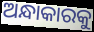
ଅନ୍ଧାକାରକୁ